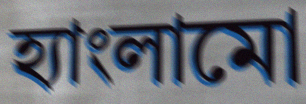
হ্যাংলামো